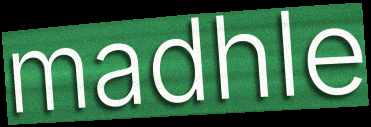
madhle